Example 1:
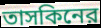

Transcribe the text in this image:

তাসকিনের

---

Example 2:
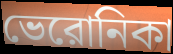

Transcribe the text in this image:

ভেরোনিকা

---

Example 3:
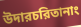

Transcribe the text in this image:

উদারচরিতানাং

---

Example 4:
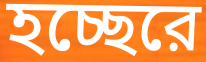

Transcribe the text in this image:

হচ্ছেরে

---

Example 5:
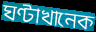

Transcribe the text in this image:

ঘণ্টাখানেক